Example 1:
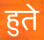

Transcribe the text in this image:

हुते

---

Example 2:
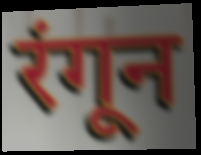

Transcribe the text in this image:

रंगून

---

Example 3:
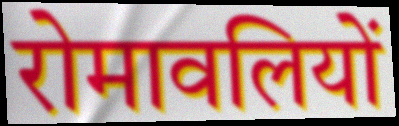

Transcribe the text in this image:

रोमावलियों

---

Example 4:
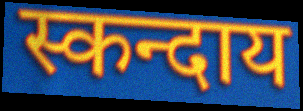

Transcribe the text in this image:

स्कन्दाय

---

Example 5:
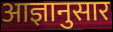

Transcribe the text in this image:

आज्ञानुसार